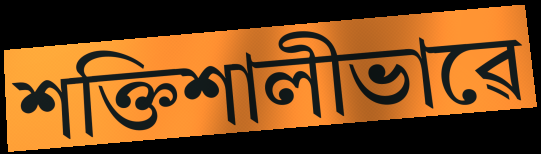
শক্তিশালীভাৱে